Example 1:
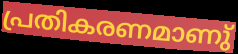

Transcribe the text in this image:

പ്രതികരണമാണു്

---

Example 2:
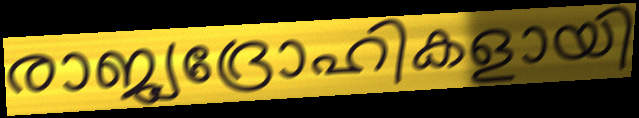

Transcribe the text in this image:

രാജ്യദ്രോഹികളായി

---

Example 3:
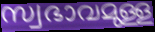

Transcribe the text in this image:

സ്വഭാവമുള്ള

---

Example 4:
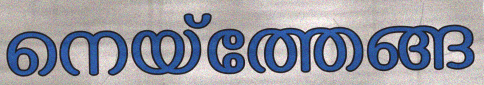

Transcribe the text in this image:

നെയ്ത്തേങ്ങ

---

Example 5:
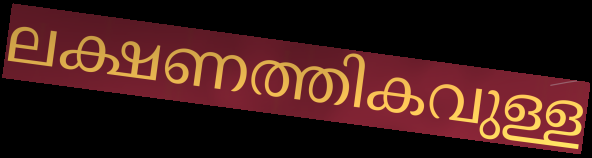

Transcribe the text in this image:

ലക്ഷണത്തികവുള്ള